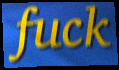
fuck